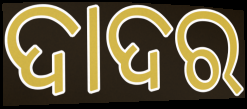
ଦାଦର